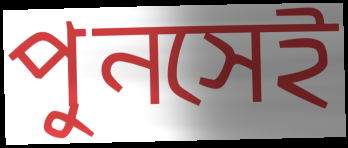
পুনসেই